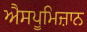
ਐਸਪੂਮਿਜ਼ਾਨ